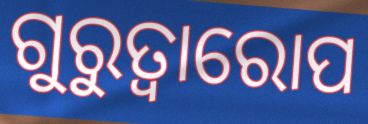
ଗୁରୁତ୍ୱାରୋପ